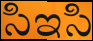
సిఇసి